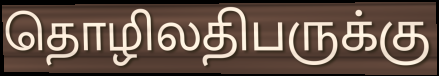
தொழிலதிபருக்கு